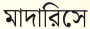
মাদারিসে